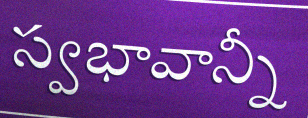
స్వభావాన్నీ